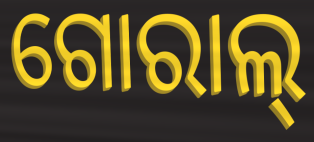
ଗୋରାଲ୍